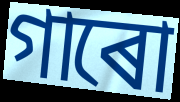
গাৰো